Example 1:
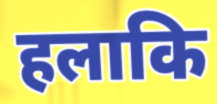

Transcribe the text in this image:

हलाकि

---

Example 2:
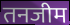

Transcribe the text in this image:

तनजीम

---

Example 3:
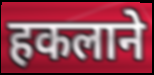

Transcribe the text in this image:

हकलाने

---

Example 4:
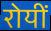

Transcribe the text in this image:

रोयीं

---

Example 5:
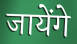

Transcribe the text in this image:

जायेंगे